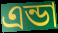
এন্ডা